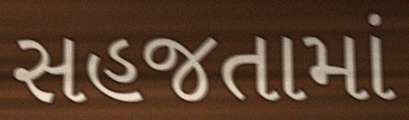
સહજતામાં